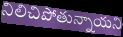
నిలిచిపోతున్నాయని